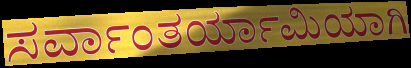
ಸರ್ವಾಂತರ್ಯಾಮಿಯಾಗಿ